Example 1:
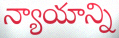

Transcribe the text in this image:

న్యాయాన్ని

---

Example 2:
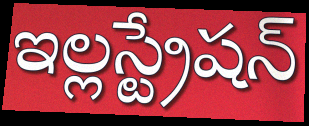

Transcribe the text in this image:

ఇల్లస్ట్రేషన్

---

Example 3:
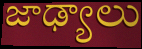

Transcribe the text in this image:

జాఢ్యాలు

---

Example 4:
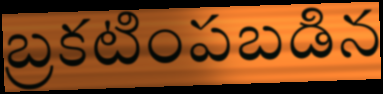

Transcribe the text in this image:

బ్రకటింపబడిన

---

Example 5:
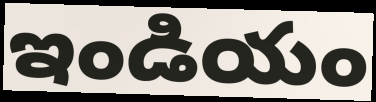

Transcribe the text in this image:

ఇండియం